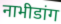
नाभीडांग